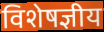
विशेषज्ञीय